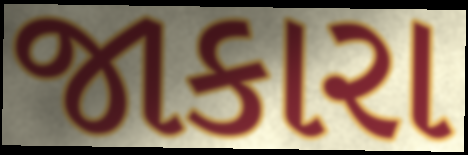
જાકારા